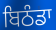
ਬਿਠੰਡਾ